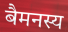
बैमनस्य